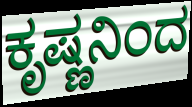
ಕೃಷ್ಣನಿಂದ